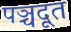
पञ्चदूत